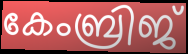
കേംബ്രിജ്